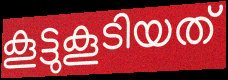
കൂട്ടുകൂടിയത്